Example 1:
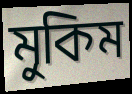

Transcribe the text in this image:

মুকিম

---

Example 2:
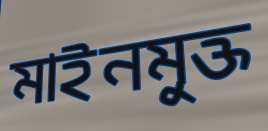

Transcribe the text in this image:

মাইনমুক্ত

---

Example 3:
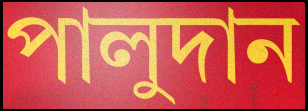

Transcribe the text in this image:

পালুদান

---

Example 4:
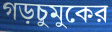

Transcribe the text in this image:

গড়চুমুকের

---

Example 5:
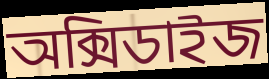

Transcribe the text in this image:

অক্সিডাইজ